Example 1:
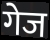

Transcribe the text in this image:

गेज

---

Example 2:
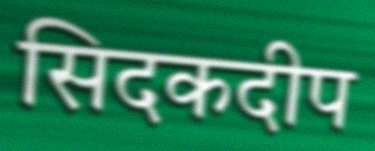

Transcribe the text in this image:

सिदकदीप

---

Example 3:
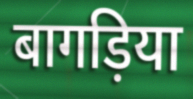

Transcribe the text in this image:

बागड़िया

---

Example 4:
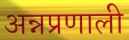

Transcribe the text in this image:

अन्नप्रणाली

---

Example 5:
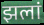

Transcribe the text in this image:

झलां